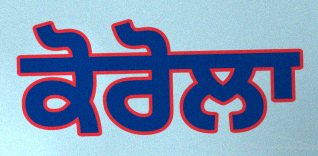
ਕੋਰੋਲਾ